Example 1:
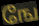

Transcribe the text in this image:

ஙே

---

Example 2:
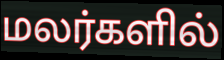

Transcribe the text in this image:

மலர்களில்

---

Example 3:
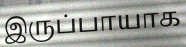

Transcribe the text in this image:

இருப்பாயாக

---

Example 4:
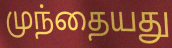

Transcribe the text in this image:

முந்தையது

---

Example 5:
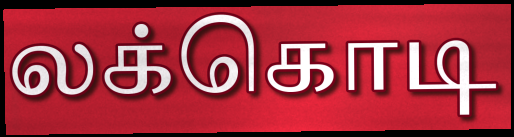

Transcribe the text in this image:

லக்கொடி